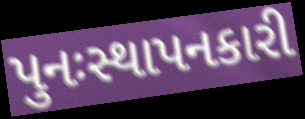
પુનઃસ્થાપનકારી